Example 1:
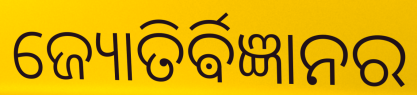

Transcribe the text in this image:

ଜ୍ୟୋତିର୍ଵିଜ୍ଞାନର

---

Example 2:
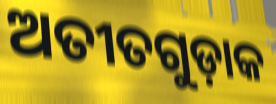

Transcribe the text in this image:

ଅତୀତଗୁଡ଼ାକ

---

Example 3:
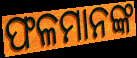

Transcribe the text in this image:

ଫଳମାନଙ୍କ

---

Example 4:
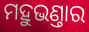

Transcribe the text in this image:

ମହୁଭଣ୍ତାର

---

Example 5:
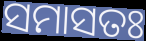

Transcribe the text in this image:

ସମାସତଃ